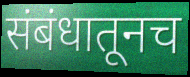
संबंधातूनच